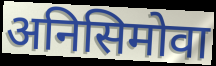
अनिसिमोवा